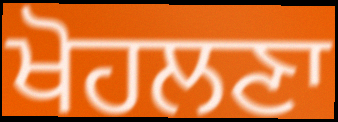
ਖੋਹਲਣਾ